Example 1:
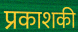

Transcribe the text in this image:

प्रकाशकी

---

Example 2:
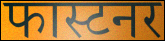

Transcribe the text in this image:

फास्टनर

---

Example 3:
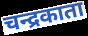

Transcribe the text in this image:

चन्द्रकाता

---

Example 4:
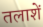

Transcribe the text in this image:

तलाशें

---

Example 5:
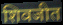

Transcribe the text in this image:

शिवजीत